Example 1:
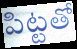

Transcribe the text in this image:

పిట్టతో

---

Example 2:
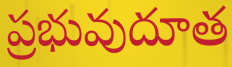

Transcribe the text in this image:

ప్రభువుదూత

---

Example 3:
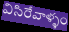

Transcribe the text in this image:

విసిరేవాళ్ళం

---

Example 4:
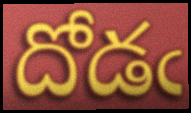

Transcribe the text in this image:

దోడఁ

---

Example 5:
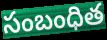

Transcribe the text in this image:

సంబంధిత